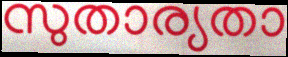
സുതാര്യതാ